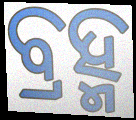
ବ୍ରହ୍ମ